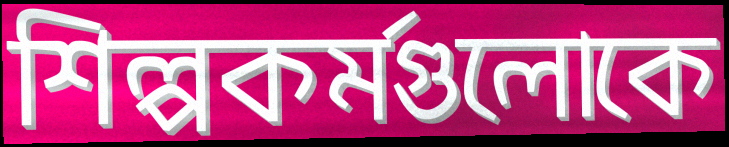
শিল্পকর্মগুলোকে